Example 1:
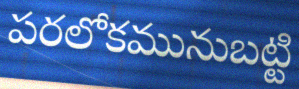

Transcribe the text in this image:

పరలోకమునుబట్టి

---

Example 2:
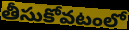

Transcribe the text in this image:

తీసుకోవటంలో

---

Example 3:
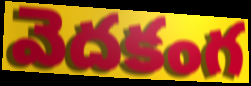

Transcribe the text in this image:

వెదకంగ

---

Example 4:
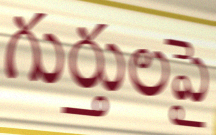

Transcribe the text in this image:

గుర్తులపై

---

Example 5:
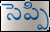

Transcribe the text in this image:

సెప్పి